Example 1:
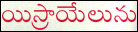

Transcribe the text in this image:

యిస్రాయేలును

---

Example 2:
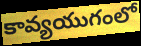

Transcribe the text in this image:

కావ్యయుగంలో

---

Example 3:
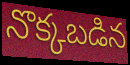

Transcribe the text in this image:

నొక్కబడిన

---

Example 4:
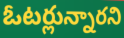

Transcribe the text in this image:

ఓటర్లున్నారని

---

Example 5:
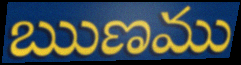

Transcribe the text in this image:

ఋణము